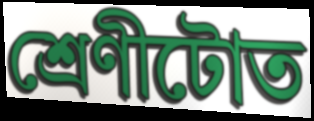
শ্ৰেণীটোত